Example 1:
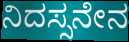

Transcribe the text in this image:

ನಿದಸ್ಸನೇನ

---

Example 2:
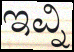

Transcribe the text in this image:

ಇವ್ನಿ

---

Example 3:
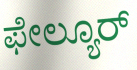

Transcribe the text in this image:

ಫೇಲ್ಯೂರ್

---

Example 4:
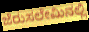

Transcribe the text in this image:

ಜೆರುಸಲೇಮಿನಲ್ಲಿ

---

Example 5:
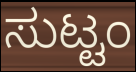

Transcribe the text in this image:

ಸುಟ್ಟಂ